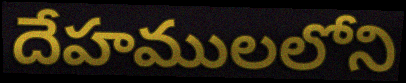
దేహములలోని